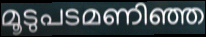
മൂടുപടമണിഞ്ഞ